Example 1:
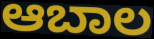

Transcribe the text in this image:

ಆಬಾಲ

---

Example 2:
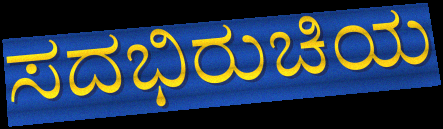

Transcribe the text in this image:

ಸದಭಿರುಚಿಯ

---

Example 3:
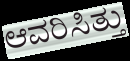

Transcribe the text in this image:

ಆವರಿಸಿತ್ತು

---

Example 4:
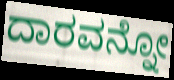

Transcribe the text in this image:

ದಾರವನ್ನೋ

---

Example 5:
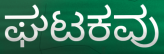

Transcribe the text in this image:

ಘಟಕವು